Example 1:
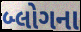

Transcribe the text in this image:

બ્લોગના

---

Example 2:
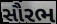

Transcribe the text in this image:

સૌરભ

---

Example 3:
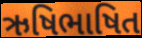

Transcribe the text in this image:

ઋષિભાષિત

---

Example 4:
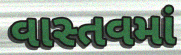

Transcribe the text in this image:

વાસ્તવમાં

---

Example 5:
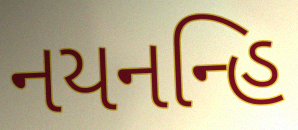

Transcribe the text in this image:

નયનન્હિ